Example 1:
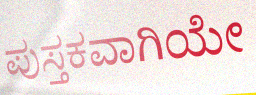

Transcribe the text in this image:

ಪುಸ್ತಕವಾಗಿಯೇ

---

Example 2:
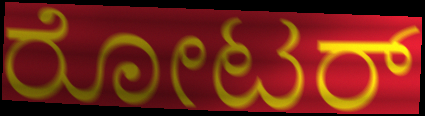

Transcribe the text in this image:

ರೋಟರ್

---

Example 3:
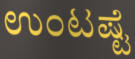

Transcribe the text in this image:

ಉಂಟಷ್ಟೆ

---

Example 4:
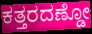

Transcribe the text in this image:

ಕತ್ತರದಣ್ಡೋ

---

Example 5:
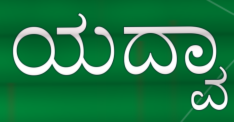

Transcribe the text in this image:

ಯದ್ವಾ